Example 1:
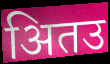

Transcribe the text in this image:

अितउ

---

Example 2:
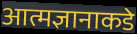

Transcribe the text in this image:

आत्मज्ञानाकडे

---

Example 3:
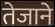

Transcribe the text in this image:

तेजाने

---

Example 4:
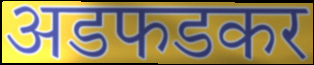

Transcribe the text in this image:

अडफडकर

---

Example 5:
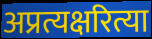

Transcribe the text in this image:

अप्रत्यक्षरित्या